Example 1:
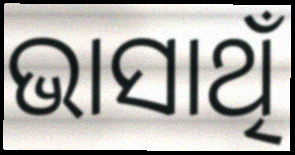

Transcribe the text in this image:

ଭାସାଥିଁ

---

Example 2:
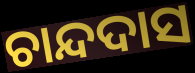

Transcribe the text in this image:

ଚାନ୍ଦଦାସ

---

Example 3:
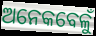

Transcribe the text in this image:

ଅନେକବେଳୁଁ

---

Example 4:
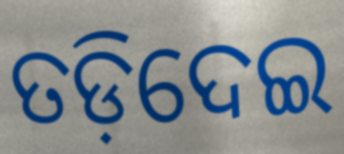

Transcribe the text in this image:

ତଡ଼ିଦେଇ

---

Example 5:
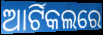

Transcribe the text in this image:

ଆର୍ଟିକଲରେ